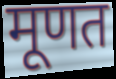
मूणत